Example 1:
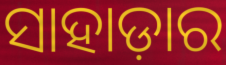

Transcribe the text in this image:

ସାହାଡ଼ାର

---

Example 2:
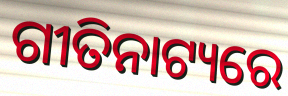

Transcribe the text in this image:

ଗୀତିନାଟ୍ୟରେ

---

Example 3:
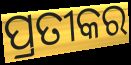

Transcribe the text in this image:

ପ୍ରତୀକର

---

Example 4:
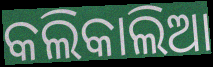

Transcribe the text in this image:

କଲିକାଲିଆ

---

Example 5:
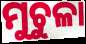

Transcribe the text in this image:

ମୁଚୁଳା